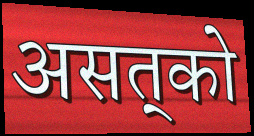
असत्‌को